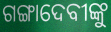
ଗଙ୍ଗାଦେବୀଙ୍କୁ